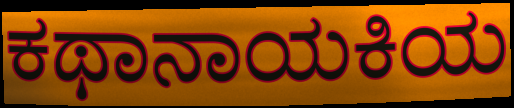
ಕಥಾನಾಯಕಿಯ